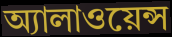
অ্যালাওয়েন্স